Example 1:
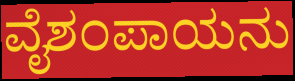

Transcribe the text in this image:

ವೈಶಂಪಾಯನು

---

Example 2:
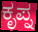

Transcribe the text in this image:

ಕೃಪ್ನ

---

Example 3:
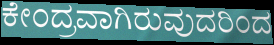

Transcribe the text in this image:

ಕೇಂದ್ರವಾಗಿರುವುದರಿಂದ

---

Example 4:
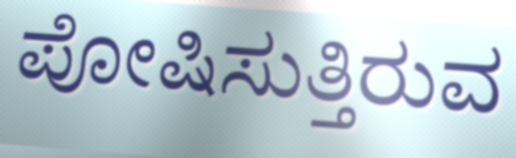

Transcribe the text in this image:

ಪೋಷಿಸುತ್ತಿರುವ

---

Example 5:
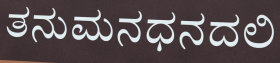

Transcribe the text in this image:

ತನುಮನಧನದಲಿ